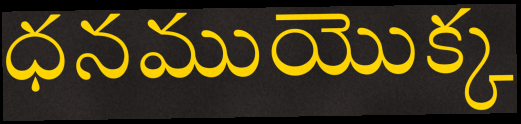
ధనముయొక్క